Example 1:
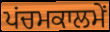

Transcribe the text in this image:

ਪਂਚਮਕਾਲਮੇਂ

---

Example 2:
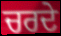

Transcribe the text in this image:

ਚਰਦੇ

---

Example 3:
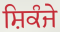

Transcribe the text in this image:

ਸ਼ਿਕੰਜੇ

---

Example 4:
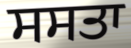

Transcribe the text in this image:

ਸਸਤਾ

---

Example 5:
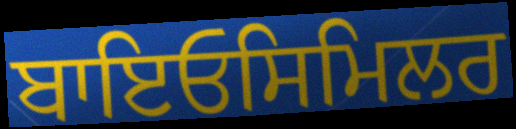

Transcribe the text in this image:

ਬਾਇਓਸਿਮਿਲਰ